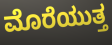
ಮೊರೆಯುತ್ತ